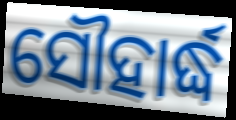
ସୌହାର୍ଦ୍ଧ